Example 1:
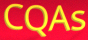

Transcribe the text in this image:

CQAs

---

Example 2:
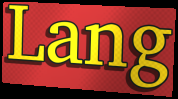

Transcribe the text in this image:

Lang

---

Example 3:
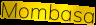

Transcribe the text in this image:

Mombasa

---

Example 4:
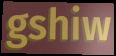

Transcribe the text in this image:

gshiw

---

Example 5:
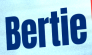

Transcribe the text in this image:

Bertie